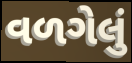
વળગેલું